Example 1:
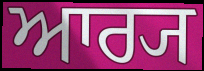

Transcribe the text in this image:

ਆਰ੍ਯ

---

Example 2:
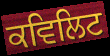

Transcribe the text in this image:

ਕਵਿਲਿਟ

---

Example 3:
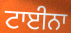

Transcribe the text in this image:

ਟਾਈਨਾ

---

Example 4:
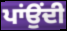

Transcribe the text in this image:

ਪਾਂਉਂਦੀ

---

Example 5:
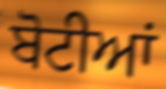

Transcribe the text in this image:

ਬੋਟੀਆਂ